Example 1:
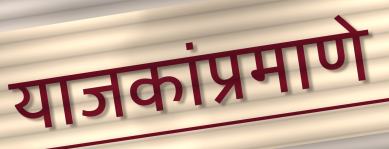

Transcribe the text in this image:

याजकांप्रमाणे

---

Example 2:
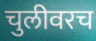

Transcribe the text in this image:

चुलीवरच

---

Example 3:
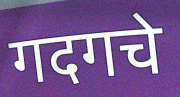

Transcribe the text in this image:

गदगचे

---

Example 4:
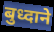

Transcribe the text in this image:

बुध्दाने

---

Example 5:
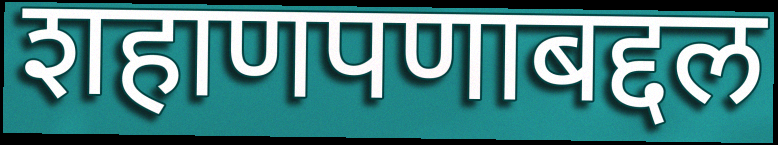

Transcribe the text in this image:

शहाणपणाबद्दल